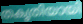
തകൃതിയായി